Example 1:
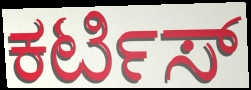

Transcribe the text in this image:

ಕರ್ಟಿಸ್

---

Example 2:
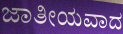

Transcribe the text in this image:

ಜಾತೀಯವಾದ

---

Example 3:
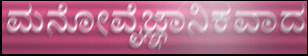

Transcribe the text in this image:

ಮನೋವೈಜ್ಞಾನಿಕವಾದ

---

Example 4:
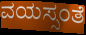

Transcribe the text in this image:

ವಯಸ್ಸಂತೆ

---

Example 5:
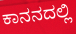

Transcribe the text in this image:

ಕಾನನದಲ್ಲಿ